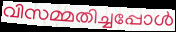
വിസമ്മതിച്ചപ്പോൾ